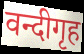
वन्दीगृह